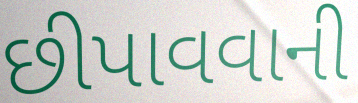
છીપાવવાની